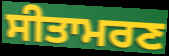
ਸੀਤਾਮਰਣ